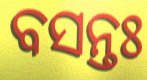
ବସନ୍ତଃ